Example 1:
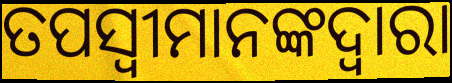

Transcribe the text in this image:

ତପସ୍ୱୀମାନଙ୍କଦ୍ୱାରା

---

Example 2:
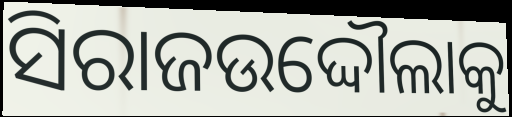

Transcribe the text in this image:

ସିରାଜଉଦ୍ଦୌଲାକୁ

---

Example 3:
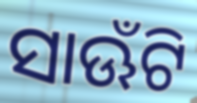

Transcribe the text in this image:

ସାଊଁଟି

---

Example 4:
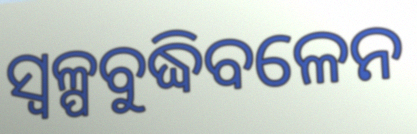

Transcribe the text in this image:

ସ୍ଵଳ୍ପବୁଦ୍ଧିବଳେନ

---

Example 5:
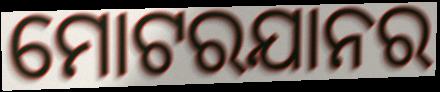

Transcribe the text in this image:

ମୋଟରଯାନର